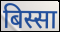
बिस्सा